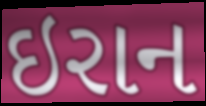
ઇરાન